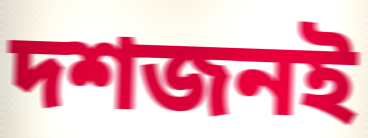
দশজনই